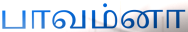
பாவம்னா